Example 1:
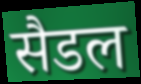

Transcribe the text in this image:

सैडल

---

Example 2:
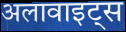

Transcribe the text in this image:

अलावाइट्स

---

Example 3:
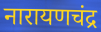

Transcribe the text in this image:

नारायणचंद्र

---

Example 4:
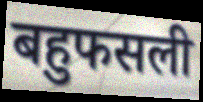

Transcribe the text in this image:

बहुफसली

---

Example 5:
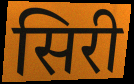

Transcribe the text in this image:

सिरी